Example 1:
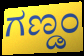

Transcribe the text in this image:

ಗಣ್ಡಂ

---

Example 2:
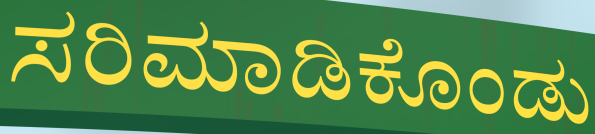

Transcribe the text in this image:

ಸರಿಮಾಡಿಕೊಂಡು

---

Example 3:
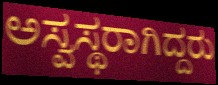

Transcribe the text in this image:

ಅಸ್ವಸ್ಥರಾಗಿದ್ದರು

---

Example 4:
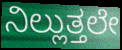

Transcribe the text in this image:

ನಿಲ್ಲುತ್ತಲೇ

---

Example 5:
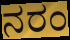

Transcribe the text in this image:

ನರಂ